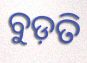
ବୁଡ଼ତି